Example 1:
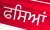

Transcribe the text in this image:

ਫਸਿਆਂ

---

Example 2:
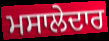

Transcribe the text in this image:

ਮਸਾਲੇਦਾਰ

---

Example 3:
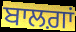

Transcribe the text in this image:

ਬਾਲਗ਼ਾਂ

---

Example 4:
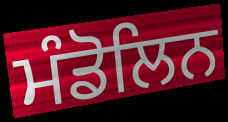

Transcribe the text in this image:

ਮੰਡੋਲਿਨ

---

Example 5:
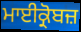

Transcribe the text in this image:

ਮਾਈਕ੍ਰੋਬਜ਼